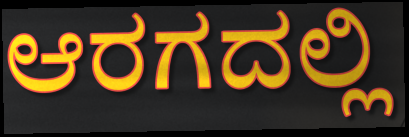
ಆರಗದಲ್ಲಿ